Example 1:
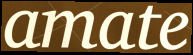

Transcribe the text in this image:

amate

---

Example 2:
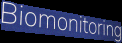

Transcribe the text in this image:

Biomonitoring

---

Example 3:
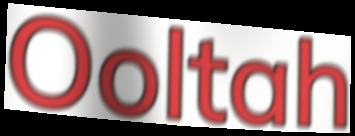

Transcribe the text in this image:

Ooltah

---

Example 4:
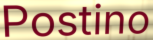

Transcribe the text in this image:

Postino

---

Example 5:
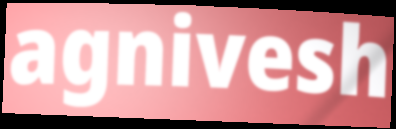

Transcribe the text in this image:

agnivesh